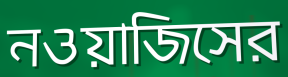
নওয়াজিসের